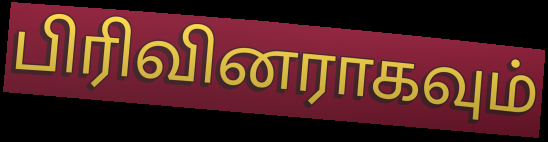
பிரிவினராகவும்